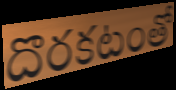
దొరకటంతో